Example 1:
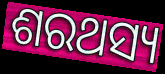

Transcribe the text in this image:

ଶରଥସ୍ୟ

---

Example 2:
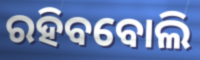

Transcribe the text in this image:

ରହିବବୋଲି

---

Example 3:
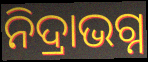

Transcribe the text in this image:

ନିଦ୍ରାଭଗ୍ନ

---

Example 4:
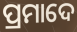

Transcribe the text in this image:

ପ୍ରମାଦେ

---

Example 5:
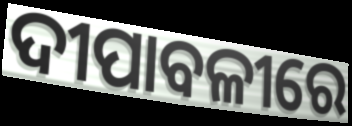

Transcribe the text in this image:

ଦୀପାବଳୀରେ